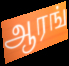
ஆரங்